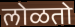
लोळतो